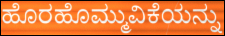
ಹೊರಹೊಮ್ಮುವಿಕೆಯನ್ನು